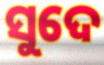
ସୁଦେ